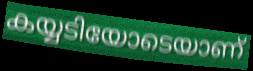
കയ്യടിയോടെയാണ്